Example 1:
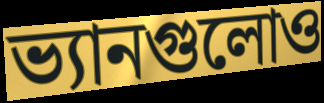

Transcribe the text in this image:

ভ্যানগুলোও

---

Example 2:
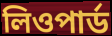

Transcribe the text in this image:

লিওপার্ড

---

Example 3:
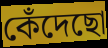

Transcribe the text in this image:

কেঁদেছো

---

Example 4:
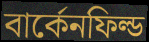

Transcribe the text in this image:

বার্কেনফিল্ড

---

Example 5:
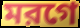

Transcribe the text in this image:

মরগে